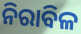
ନିରାବିଳ